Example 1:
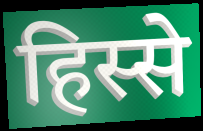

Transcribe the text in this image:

हिस्‍से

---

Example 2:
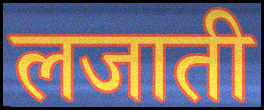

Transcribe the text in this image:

लजाती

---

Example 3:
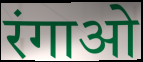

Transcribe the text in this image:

रंगाओ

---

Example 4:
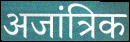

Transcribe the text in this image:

अजांत्रिक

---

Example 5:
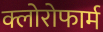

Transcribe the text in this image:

क्लोरोफार्म